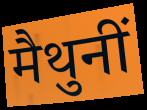
मैथुनीं